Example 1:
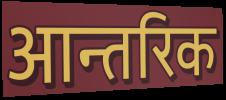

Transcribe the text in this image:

आन्तरिक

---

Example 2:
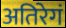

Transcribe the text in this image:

अतिरेगं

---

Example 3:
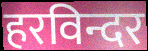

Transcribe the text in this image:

हरविन्दर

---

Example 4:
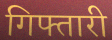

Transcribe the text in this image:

गिफ्तारी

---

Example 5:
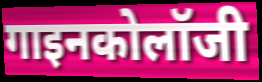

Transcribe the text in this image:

गाइनकोलॉजी